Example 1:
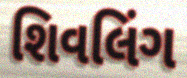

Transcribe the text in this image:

શિવલિંગ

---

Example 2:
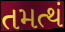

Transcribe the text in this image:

તમત્થં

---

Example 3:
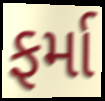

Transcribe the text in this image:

ફર્મા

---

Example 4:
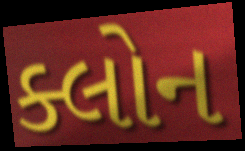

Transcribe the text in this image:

ક્લોન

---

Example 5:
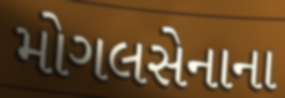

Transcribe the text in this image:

મોગલસેનાના